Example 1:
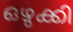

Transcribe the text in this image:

ഒഴുക്കി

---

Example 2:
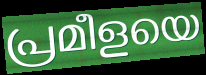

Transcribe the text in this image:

പ്രമീളയെ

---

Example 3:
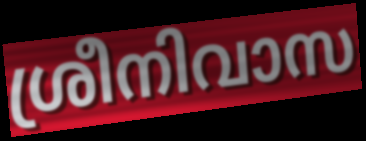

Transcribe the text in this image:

ശ്രീനിവാസ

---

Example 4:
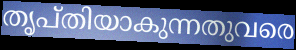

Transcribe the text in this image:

തൃപ്തിയാകുന്നതുവരെ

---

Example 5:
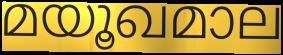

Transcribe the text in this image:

മയൂഖമാല